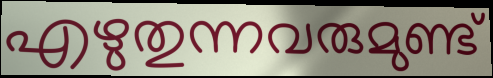
എഴുതുന്നവരുമുണ്ട്